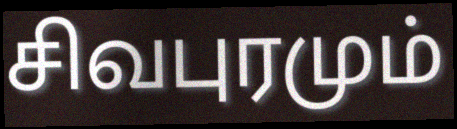
சிவபுரமும்